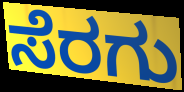
ಸೆರಗು